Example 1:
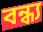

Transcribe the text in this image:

বন্ধ্য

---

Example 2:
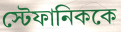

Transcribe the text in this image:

স্টেফানিককে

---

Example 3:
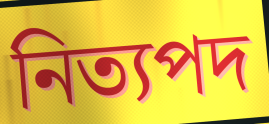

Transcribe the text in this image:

নিত্যপদ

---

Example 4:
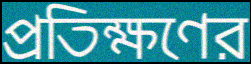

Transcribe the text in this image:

প্রতিক্ষণের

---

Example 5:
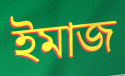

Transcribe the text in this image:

ইমাজ